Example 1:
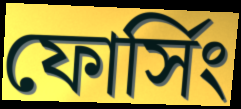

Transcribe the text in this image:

ফোর্সিং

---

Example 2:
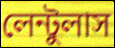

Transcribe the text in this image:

লেন্টুলাস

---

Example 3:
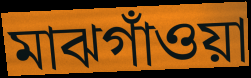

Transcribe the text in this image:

মাঝগাঁওয়া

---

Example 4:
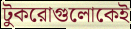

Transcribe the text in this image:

টুকরোগুলোকেই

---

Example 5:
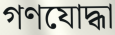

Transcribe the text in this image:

গণযোদ্ধা